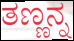
ತಣ್ಣನ್ನ